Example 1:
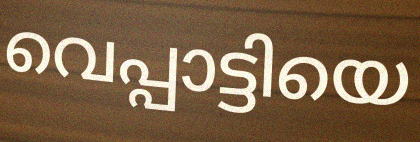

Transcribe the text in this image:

വെപ്പാട്ടിയെ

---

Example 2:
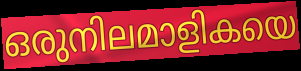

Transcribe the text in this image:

ഒരുനിലമാളികയെ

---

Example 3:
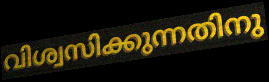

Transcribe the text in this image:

വിശ്വസിക്കുന്നതിനു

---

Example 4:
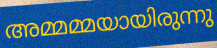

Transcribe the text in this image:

അമ്മമ്മയായിരുന്നു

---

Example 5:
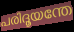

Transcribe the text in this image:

പരിദൂയന്തേ